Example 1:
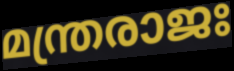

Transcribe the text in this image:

മന്ത്രരാജഃ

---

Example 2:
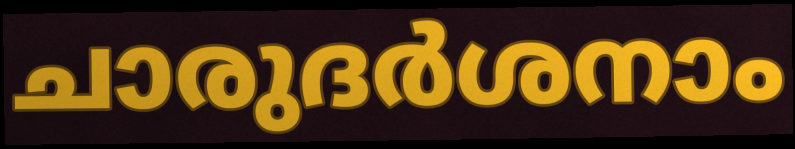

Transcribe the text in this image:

ചാരുദർശനാം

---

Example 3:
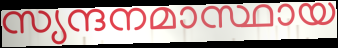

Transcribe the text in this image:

സ്യന്ദനമാസ്ഥായ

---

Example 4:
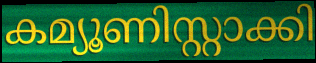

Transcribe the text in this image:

കമ്യൂണിസ്റ്റാക്കി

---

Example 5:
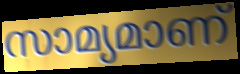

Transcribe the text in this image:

സാമ്യമാണ്